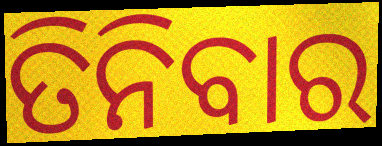
ତିନିବାର